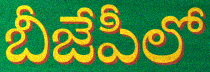
బీజేపీలో